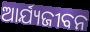
ଆର୍ଯ୍ୟଜୀବନ